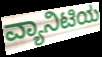
ವ್ಯಾನಿಟಿಯ